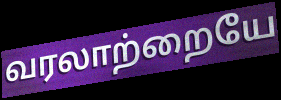
வரலாற்றையே